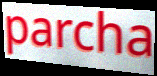
parcha